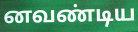
னவண்டிய